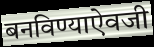
बनविण्याऐवजी